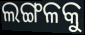
ଲଙ୍ଗଳକୁ